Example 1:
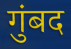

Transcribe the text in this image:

गुंबद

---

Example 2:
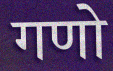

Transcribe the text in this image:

गणो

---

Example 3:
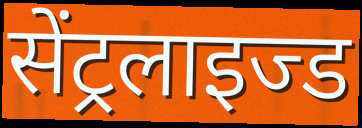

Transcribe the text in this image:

सेंट्रलाइज्ड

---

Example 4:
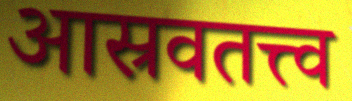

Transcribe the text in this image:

आस्रवतत्त्व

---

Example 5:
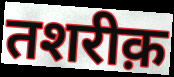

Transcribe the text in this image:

तशरीक़